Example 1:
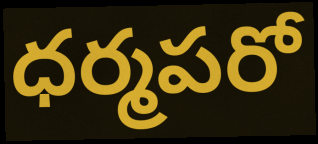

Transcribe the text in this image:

ధర్మపరో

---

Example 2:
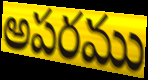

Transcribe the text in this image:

అపరము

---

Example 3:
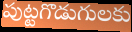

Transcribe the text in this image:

పుట్టగొడుగులకు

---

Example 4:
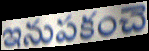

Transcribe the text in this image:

ఇనుపకంచె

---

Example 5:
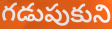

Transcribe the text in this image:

గడుపుకుని